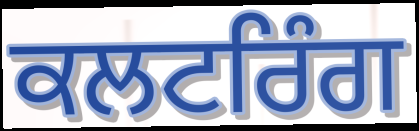
ਕਲਟਰਿੰਗ